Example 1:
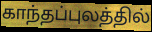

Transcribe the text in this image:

காந்தப்புலத்தில்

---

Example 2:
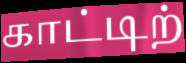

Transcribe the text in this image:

காட்டிற்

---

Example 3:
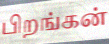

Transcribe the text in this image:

பிறங்கன்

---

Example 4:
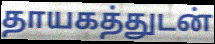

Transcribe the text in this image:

தாயகத்துடன்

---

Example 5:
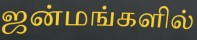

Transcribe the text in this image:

ஜன்மங்களில்